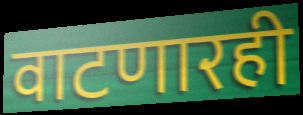
वाटणारही